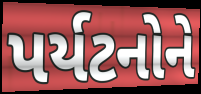
પર્યટનોને